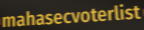
mahasecvoterlist